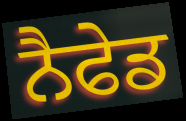
ਨੈਫੇਡ